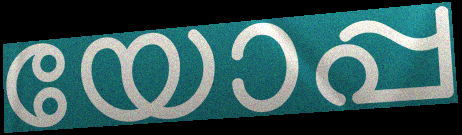
യോപ്പ